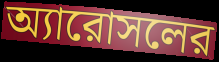
অ্যারোসলের